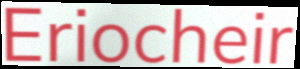
Eriocheir